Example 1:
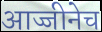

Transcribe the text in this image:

आज्जीनेच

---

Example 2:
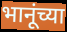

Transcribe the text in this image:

भानूंच्या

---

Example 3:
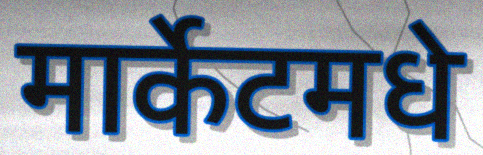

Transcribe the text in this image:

मार्केटमधे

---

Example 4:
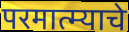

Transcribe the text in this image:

परमात्म्याचे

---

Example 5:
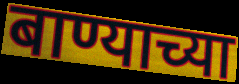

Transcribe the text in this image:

बाण्याच्या